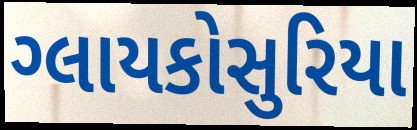
ગ્લાયકોસુરિયા